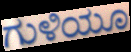
ಗುಳಿಯೂ